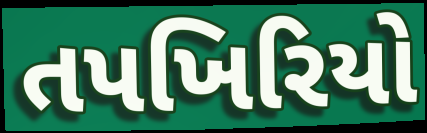
તપખિરિયો